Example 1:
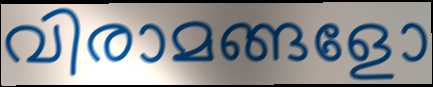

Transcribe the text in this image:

വിരാമങ്ങളോ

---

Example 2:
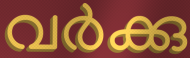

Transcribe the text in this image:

വർക്കു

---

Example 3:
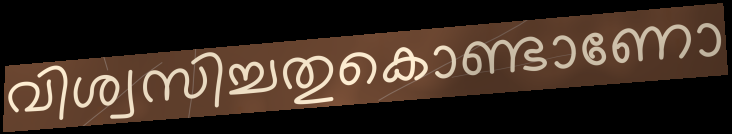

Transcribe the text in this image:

വിശ്വസിച്ചതുകൊണ്ടാണോ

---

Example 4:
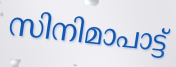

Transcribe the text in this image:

സിനിമാപാട്ട്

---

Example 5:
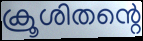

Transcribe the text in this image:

ക്രൂശിതന്റെ